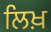
ਲਿਖ਼